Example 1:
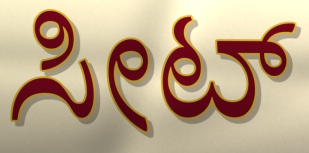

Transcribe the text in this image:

ಸೀಟ್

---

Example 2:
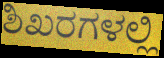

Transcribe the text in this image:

ಶಿಖರಗಳಲ್ಲಿ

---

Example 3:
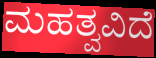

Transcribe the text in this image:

ಮಹತ್ವವಿದೆ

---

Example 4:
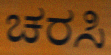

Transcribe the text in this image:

ಚರಸಿ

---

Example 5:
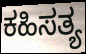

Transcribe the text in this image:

ಕಹಿಸತ್ಯ